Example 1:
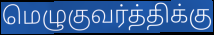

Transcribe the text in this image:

மெழுகுவர்த்திக்கு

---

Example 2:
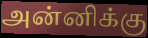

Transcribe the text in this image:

அன்னிக்கு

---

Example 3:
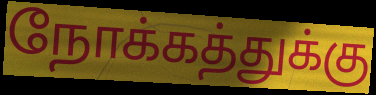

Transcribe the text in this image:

நோக்கத்துக்கு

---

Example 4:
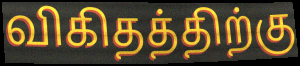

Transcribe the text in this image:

விகிதத்திற்கு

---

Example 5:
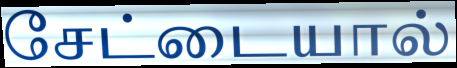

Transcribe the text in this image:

சேட்டையால்